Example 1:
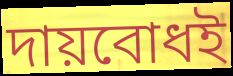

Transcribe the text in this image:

দায়বোধই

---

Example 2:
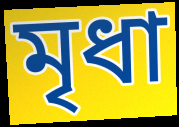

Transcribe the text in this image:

মৃধা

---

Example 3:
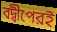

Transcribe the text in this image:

বদ্বীপেরই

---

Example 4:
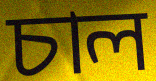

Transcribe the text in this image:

চাল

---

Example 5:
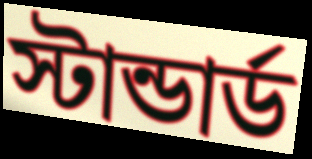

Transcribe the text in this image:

স্টান্ডার্ড